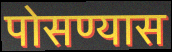
पोसण्यास